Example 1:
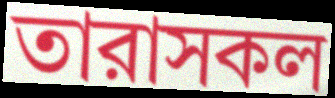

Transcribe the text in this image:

তারাসকল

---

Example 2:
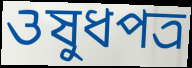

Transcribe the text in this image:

ওষুধপত্র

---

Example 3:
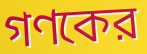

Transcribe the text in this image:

গণকের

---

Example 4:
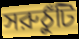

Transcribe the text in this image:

সরুঠুঁটি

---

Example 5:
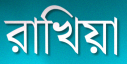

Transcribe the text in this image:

রাখিয়া